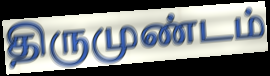
திருமுண்டம்